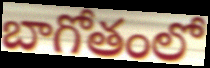
బాగోతంలో